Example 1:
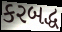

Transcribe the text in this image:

કરબદ્ધ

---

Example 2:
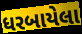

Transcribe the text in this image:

ધરબાયેલા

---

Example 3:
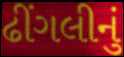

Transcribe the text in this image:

ઢીંગલીનું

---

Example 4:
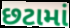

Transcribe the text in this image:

છટામાં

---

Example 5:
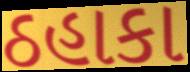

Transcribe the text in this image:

ઠહાકા